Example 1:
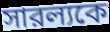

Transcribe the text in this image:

সারল্যকে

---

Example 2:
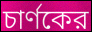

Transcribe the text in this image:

চার্ণকের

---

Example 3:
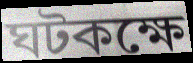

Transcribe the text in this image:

ঘটকক্ষে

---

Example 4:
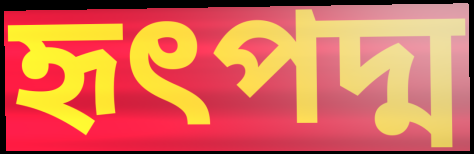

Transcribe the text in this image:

হৃৎপদ্ম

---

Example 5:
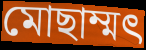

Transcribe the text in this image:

মোছাম্মৎ